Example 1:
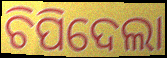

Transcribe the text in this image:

ଚିପିଦେଲା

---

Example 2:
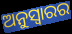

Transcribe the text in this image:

ଅନୁସ୍ଵାରର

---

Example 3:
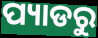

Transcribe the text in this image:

ପ୍ୟାଡରୁ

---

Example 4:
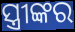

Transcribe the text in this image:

ସ୍ତ୍ରୀଙ୍କର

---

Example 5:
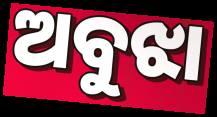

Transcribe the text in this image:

ଅବୁଝା